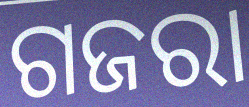
ଗଜରା